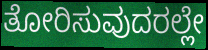
ತೋರಿಸುವುದರಲ್ಲೇ